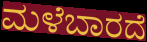
ಮಳೆಬಾರದೆ